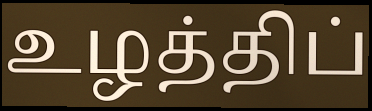
உழத்திப்